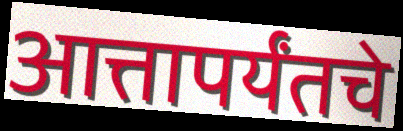
आत्तापर्यंतचे